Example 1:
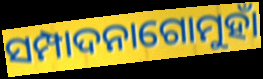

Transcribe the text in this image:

ସମ୍ପାଦନାଗୋମୁହାଁ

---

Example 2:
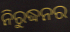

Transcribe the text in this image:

ନିରୁଦ୍ଧନର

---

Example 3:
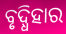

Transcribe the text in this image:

ବୃଦ୍ଧିହାର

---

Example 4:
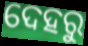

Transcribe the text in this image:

ଦେହରୁ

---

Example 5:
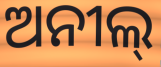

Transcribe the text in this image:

ଅନୀଲ୍